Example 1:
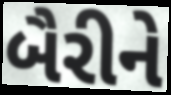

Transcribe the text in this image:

બૈરીને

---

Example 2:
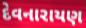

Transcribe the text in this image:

દેવનારાયણ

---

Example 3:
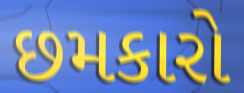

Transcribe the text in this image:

છમકારો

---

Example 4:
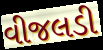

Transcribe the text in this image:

વીજલડી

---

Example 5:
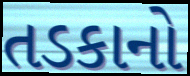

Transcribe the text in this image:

તડકાનો